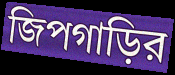
জিপগাড়ির